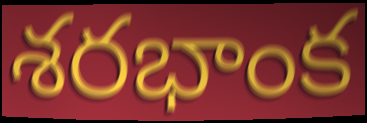
శరభాంక